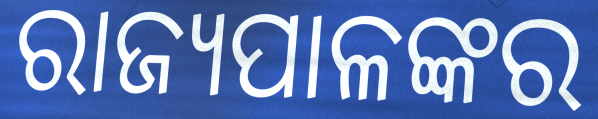
ରାଜ୍ୟପାଳଙ୍କର